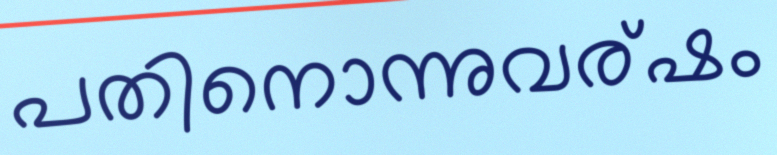
പതിനൊന്നുവര്ഷം